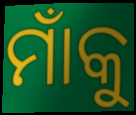
ମାଁକୁ